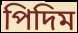
পিদিম